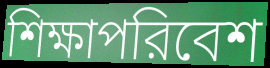
শিক্ষাপরিবেশ